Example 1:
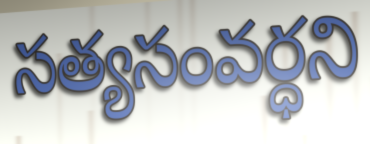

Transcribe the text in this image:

సత్యసంవర్ధని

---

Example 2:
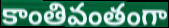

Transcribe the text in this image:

కాంతివంతంగా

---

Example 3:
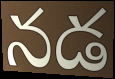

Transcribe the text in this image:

నడ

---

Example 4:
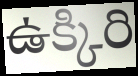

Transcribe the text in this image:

ఉక్కిరి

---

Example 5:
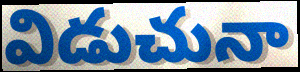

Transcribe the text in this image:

విడుచునా